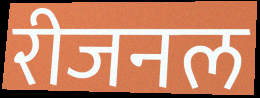
रीजनल